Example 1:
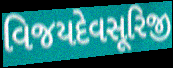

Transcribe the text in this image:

વિજયદેવસૂરિજી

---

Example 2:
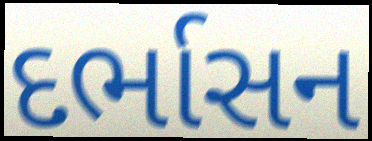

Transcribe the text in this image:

દર્ભાસન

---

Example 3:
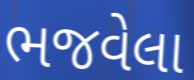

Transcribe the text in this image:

ભજવેલા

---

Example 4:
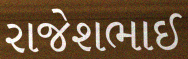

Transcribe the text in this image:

રાજેશભાઈ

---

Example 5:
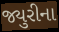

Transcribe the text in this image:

જ્યુરીના